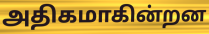
அதிகமாகின்றன